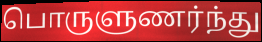
பொருளுணர்ந்து